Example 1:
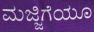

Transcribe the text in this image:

ಮಜ್ಜಿಗೆಯೂ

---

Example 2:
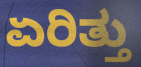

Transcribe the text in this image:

ಏರಿತ್ತು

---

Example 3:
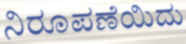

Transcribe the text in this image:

ನಿರೂಪಣೆಯಿದು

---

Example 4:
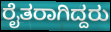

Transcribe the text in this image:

ರೈತರಾಗಿದ್ದರು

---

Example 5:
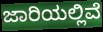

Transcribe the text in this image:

ಜಾರಿಯಲ್ಲಿವೆ